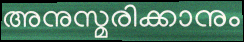
അനുസ്മരിക്കാനും